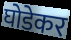
घोडेकर